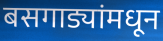
बसगाड्यांमधून